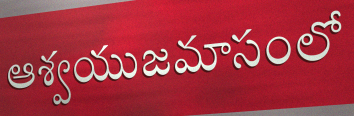
ఆశ్వయుజమాసంలో